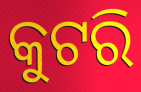
କୁଟରି